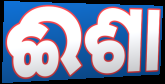
ଈଶା